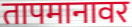
तापमानावर